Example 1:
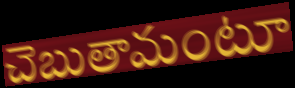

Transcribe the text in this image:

చెబుతామంటూ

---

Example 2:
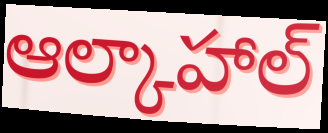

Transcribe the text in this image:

ఆల్కాహాల్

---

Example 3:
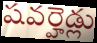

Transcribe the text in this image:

షవర్హెడ్లు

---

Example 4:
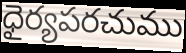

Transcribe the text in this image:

ధైర్యపరచుము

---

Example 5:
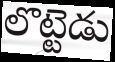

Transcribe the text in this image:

లొట్టెడు